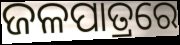
ଜଳପାତ୍ରରେ